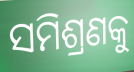
ସମିଶ୍ରଣକୁ